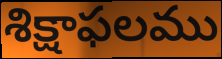
శిక్షాఫలము